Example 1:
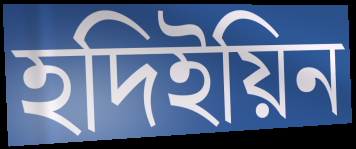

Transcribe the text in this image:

হদিইয়িন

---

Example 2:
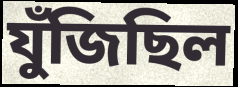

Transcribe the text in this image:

যুঁজিছিল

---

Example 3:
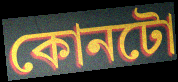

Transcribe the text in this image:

কোনটো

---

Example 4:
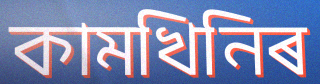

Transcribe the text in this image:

কামখিনিৰ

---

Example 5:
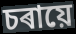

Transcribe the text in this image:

চৰায়ে